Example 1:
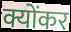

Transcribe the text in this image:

क्योंकर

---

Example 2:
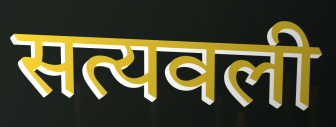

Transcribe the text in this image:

सत्यवली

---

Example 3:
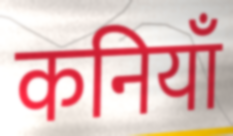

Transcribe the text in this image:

कनियाँ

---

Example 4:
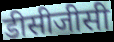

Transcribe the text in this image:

डीसीजीसी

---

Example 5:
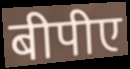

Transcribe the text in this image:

बीपीए